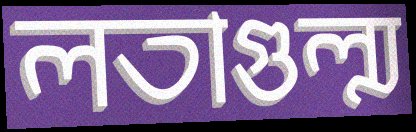
লতাগুল্ম